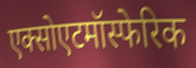
एक्सोएटमॉस्फेरिक